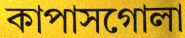
কাপাসগোলা